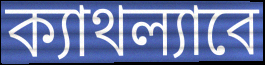
ক্যাথল্যাবে